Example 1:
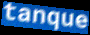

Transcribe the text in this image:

tanque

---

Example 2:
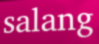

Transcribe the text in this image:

salang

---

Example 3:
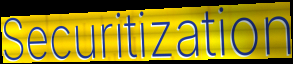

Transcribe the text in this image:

Securitization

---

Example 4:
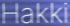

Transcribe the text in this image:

Hakki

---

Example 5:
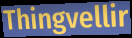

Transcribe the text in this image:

Thingvellir